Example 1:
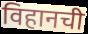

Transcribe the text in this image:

विहानची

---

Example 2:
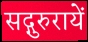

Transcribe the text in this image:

सद्गुरुरायें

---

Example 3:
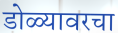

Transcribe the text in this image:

डोळ्यावरचा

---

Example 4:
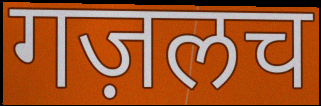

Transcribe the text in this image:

गज़लच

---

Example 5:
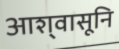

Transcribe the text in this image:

आश्वासूनि